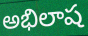
అభిలాష